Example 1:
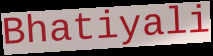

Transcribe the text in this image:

Bhatiyali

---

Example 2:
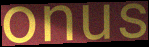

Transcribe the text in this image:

onus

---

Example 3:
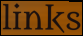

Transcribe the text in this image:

links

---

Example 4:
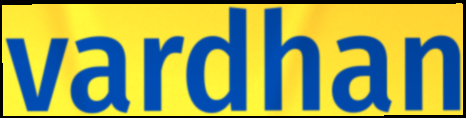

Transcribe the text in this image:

vardhan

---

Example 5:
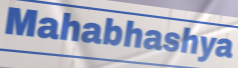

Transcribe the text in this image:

Mahabhashya